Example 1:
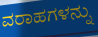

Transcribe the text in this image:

ವರಾಹಗಳನ್ನು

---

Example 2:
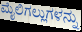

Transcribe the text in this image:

ಮೈಲಿಗಲ್ಲುಗಳನ್ನು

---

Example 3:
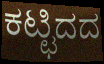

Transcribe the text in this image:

ಕಟ್ಟಿದದ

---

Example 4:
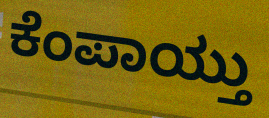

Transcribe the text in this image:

ಕೆಂಪಾಯ್ತು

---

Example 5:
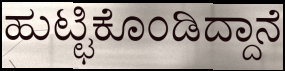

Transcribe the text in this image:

ಹುಟ್ಟಿಕೊಂಡಿದ್ದಾನೆ